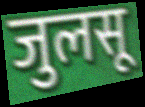
जुलसू